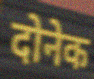
दोनेक